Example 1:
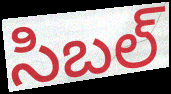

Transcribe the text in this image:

సిబల్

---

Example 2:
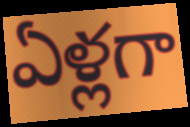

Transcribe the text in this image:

ఏళ్లగా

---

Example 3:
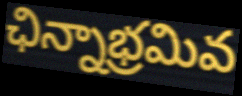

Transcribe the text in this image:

ఛిన్నాభ్రమివ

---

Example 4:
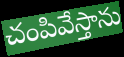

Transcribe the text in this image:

చంపివేస్తాను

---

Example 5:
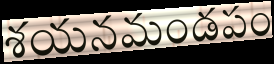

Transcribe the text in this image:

శయనమండపం